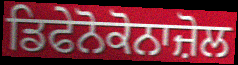
ਡਿਫੇਨੋਕੋਨਾਜ਼ੋਲ